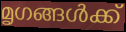
മൃഗങ്ങൾക്ക്